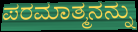
ಪರಮಾತ್ಮನನ್ನು